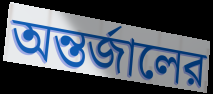
অন্তর্জালের